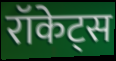
रॉकेट्स